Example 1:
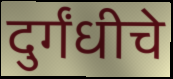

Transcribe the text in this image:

दुर्गंधीचे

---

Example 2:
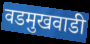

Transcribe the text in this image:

वडमुखवाडी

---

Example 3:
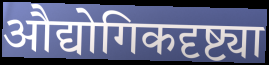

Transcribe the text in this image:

औद्योगिकदृष्ट्या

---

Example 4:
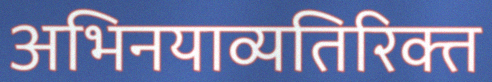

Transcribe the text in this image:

अभिनयाव्यतिरिक्त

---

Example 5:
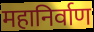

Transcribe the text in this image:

महानिर्वाण